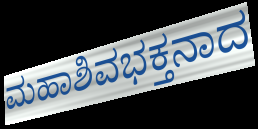
ಮಹಾಶಿವಭಕ್ತನಾದ